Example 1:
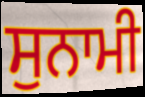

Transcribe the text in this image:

ਸੁਨਾਮੀ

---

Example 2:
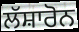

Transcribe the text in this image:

ਲੱਸ਼ਾਰੋਨ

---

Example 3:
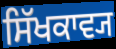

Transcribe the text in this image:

ਸਿੱਖਕਾਵ੍ਯ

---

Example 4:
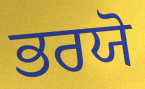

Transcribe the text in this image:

ਭਰਯੋ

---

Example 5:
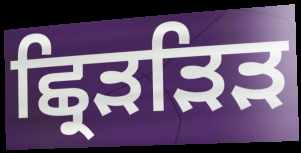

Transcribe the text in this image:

ਛ੍ਰਿੜੜਿੜ